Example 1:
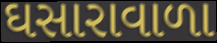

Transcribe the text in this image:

ઘસારાવાળા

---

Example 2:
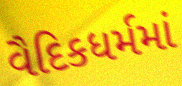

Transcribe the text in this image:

વૈદિકધર્મમાં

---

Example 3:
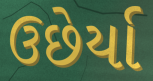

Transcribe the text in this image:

ઉછેર્યા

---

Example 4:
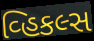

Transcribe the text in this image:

વ્હિકલ્સ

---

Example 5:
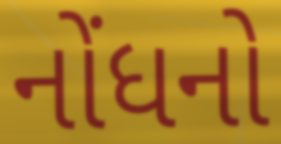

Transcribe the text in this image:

નોંધનો